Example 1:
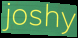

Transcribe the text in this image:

joshy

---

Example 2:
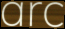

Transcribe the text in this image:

arc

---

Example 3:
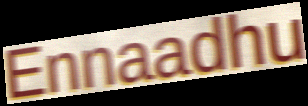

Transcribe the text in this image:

Ennaadhu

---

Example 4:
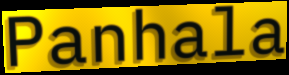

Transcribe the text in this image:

Panhala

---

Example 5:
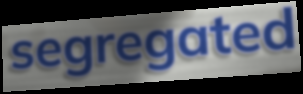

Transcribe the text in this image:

segregated